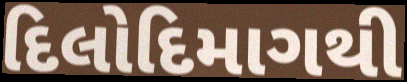
દિલોદિમાગથી